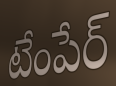
టేంపేర్